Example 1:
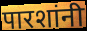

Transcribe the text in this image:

पारशांनी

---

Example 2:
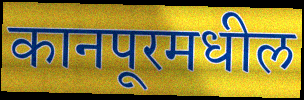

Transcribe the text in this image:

कानपूरमधील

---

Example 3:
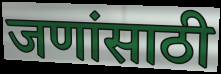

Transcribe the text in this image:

जणांसाठी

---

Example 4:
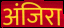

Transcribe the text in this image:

अंजिरा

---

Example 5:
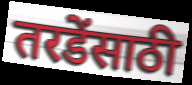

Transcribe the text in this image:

तरडेंसाठी